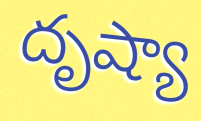
దృష్యా